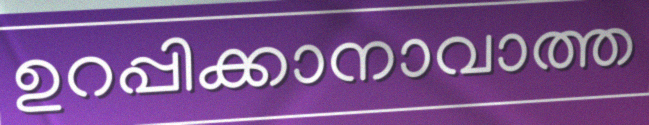
ഉറപ്പിക്കാനാവാത്ത